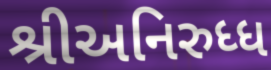
શ્રીઅનિરુધ્ધ